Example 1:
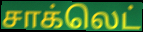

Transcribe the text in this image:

சாக்லெட்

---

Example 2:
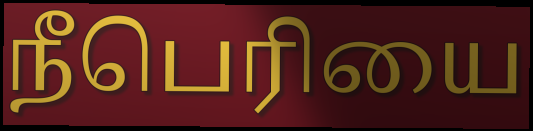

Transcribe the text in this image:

நீபெரியை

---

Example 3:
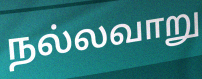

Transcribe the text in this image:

நல்லவாறு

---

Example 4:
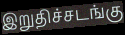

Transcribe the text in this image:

இறுதிச்சடங்கு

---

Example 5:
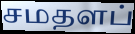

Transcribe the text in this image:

சமதளப்